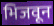
भिजवून